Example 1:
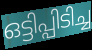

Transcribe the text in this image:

ഒട്ടിപ്പിടിച്ച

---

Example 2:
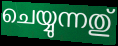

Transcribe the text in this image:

ചെയ്യുന്നതു്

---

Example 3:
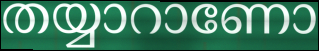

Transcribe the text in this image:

തയ്യാറാണോ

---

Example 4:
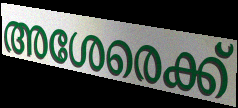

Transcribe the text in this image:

അശേരെക്ക്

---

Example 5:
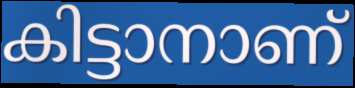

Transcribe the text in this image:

കിട്ടാനാണ്